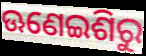
ଊଣେଇଶିରୁ